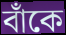
বাঁকে